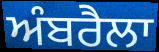
ਅੰਬਰੈਲਾ